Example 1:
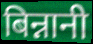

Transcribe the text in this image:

बिन्नानी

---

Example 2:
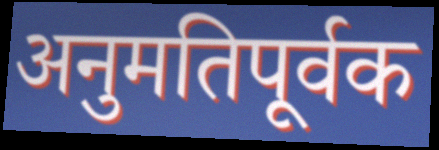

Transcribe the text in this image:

अनुमतिपूर्वक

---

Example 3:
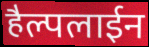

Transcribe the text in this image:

हैल्पलाईन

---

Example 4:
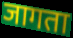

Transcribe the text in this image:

जागता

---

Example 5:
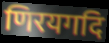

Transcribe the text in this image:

णिरयगदि